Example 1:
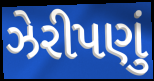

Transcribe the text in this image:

ઝેરીપણું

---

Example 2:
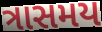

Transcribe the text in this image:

ત્રાસમય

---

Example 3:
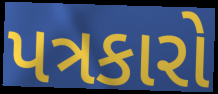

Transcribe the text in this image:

પત્રકારો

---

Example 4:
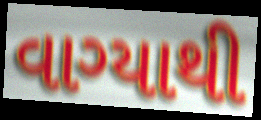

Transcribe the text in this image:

વાગ્યાથી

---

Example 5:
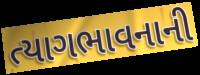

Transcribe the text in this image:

ત્યાગભાવનાની